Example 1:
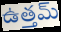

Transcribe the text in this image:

ఉత్తమ్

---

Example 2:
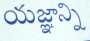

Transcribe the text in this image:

యజ్ఞాన్ని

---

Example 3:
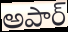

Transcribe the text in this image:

అపార్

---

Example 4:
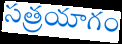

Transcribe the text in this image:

సత్రయాగం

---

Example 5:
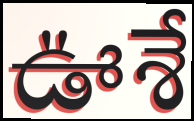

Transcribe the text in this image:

ఊశే